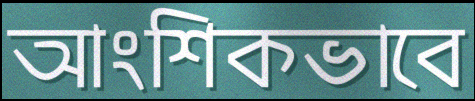
আংশিকভাবে